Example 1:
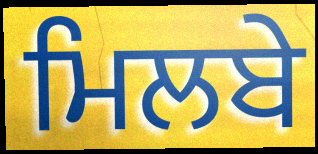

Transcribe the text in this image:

ਮਿਲਬੇ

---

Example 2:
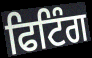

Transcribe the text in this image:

ਫਿਟਿੰਗ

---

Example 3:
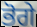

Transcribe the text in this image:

ਭੋਗੇ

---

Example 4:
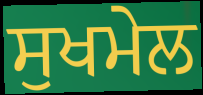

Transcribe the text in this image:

ਸੁਖਮੇਲ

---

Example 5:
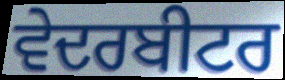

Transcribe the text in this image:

ਵੇਦਰਬੀਟਰ